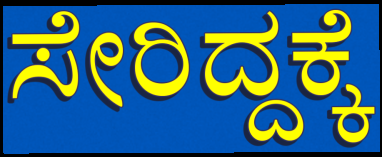
ಸೇರಿದ್ದಕ್ಕೆ